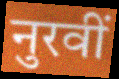
नुरवीं